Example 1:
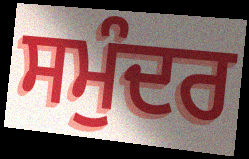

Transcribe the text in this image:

ਸਮੁੰਦਰ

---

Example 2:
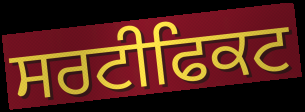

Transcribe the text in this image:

ਸਰਟੀਫਿਕਟ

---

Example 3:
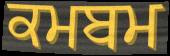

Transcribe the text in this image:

ਕਮਬਮ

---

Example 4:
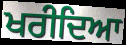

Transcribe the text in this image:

ਖਰੀਦਿਆ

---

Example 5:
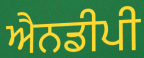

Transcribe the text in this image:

ਐਨਡੀਪੀ